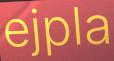
ejpla